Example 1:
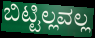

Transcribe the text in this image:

ಬಿಟ್ಟಿಲ್ಲವಲ್ಲ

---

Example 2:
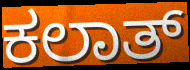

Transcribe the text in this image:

ಕಲಾತ್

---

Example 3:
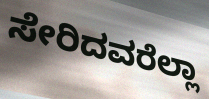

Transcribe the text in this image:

ಸೇರಿದವರೆಲ್ಲಾ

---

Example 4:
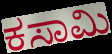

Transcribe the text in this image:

ಕಸಾಮಿ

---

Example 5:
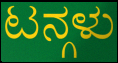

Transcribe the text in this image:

ಟನ್ಗಳು